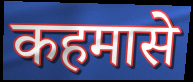
कहमासे